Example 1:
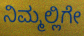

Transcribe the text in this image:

ನಿಮ್ಮಲ್ಲಿಗೇ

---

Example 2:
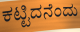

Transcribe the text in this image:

ಕಟ್ಟಿದನೆಂದು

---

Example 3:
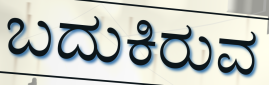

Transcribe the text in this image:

ಬದುಕಿರುವ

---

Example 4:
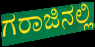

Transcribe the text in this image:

ಗರಾಜಿನಲ್ಲಿ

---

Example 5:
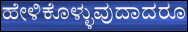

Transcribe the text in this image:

ಹೇಳಿಕೊಳ್ಳುವುದಾದರೂ